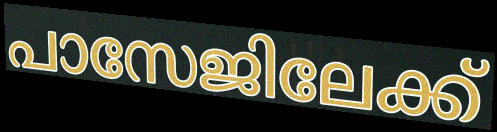
പാസേജിലേക്ക്